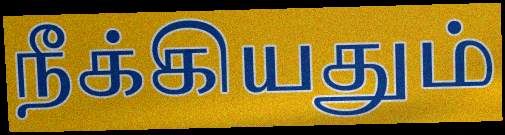
நீக்கியதும்